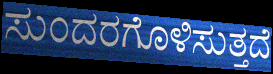
ಸುಂದರಗೊಳಿಸುತ್ತದೆ